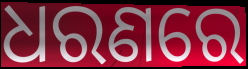
ଧରଣରେ